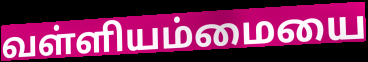
வள்ளியம்மையை